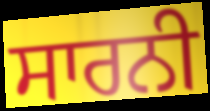
ਸਾਰਨੀ